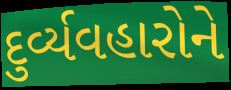
દુર્વ્યવહારોને